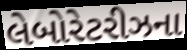
લેબોરેટરીઝના